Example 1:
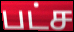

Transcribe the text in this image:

பட்ச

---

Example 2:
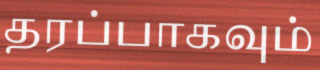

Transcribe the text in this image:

தரப்பாகவும்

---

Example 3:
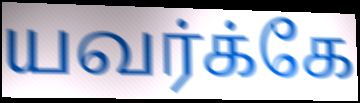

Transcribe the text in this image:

யவர்க்கே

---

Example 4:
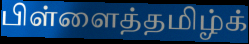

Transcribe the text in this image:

பிள்ளைத்தமிழ்க்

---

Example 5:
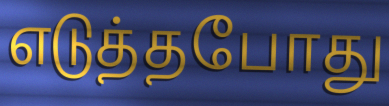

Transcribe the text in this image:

எடுத்தபோது